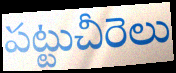
పట్టుచీరెలు